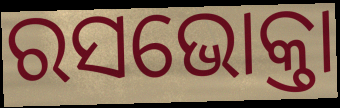
ରସଭୋକ୍ତା